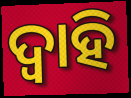
ଦ୍ୱାହି